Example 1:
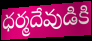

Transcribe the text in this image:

ధర్మదేవుడికి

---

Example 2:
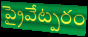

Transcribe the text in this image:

ప్రైవేట్పరం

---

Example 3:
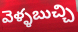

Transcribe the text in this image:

వెళ్ళబుచ్చి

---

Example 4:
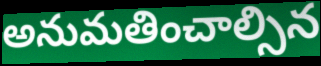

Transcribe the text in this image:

అనుమతించాల్సిన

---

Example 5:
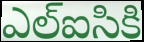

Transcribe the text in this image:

ఎల్ఐసికి